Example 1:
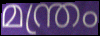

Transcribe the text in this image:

മന്ത്രം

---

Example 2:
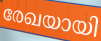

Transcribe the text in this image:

രേഖയായി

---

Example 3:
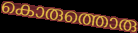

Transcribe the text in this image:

കൊരുത്തൊരു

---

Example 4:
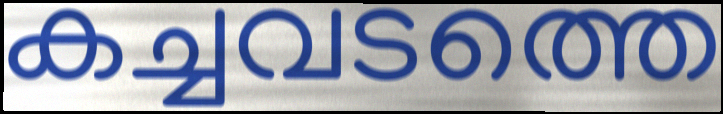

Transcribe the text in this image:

കച്ചവടത്തെ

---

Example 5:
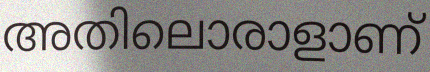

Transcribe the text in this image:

അതിലൊരാളാണ്